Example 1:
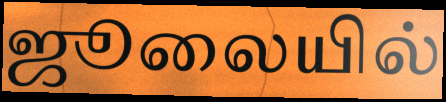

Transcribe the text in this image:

ஜூலையில்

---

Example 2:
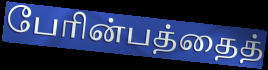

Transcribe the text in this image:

பேரின்பத்தைத்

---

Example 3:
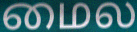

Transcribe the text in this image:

மைல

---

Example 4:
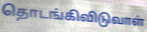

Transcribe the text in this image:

தொடங்கிவிடுவாள்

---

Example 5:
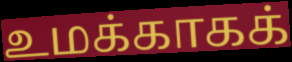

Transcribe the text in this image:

உமக்காகக்